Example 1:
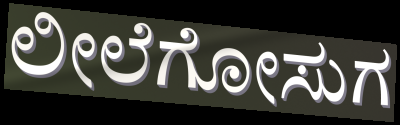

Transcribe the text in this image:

ಲೀಲೆಗೋಸುಗ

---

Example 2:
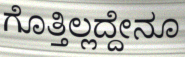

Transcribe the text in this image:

ಗೊತ್ತಿಲ್ಲದ್ದೇನೂ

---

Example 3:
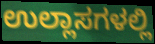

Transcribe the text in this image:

ಉಲ್ಲಾಸಗಳಲ್ಲಿ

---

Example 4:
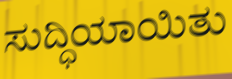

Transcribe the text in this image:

ಸುದ್ಧಿಯಾಯಿತು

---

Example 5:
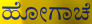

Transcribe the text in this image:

ಹೋಗಾಚೆ